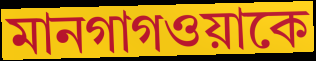
মানগাগওয়াকে